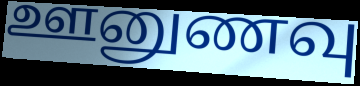
ஊனுணவு